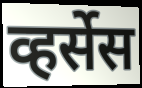
व्हर्सेस